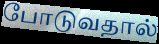
போடுவதால்